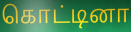
கொட்டினா